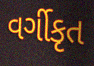
વર્ગીકૃત